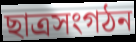
ছাত্রসংগঠন